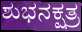
ಶುಭನಕ್ಷತ್ರ